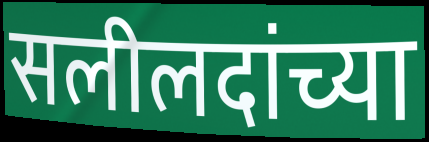
सलीलदांच्या